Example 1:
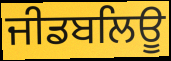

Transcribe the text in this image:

ਜੀਡਬਲਿਊ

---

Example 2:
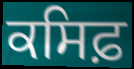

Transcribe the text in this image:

ਕਸਿਫ਼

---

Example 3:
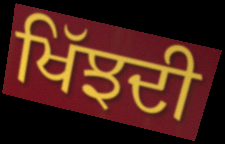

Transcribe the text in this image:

ਖਿੱਝਦੀ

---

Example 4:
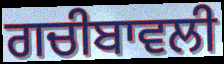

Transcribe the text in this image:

ਗਚੀਬਾਵਲੀ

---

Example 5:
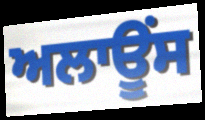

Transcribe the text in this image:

ਅਲਾਊੰਸ